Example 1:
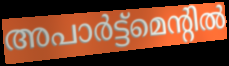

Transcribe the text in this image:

അപാർട്ട്മെന്റിൽ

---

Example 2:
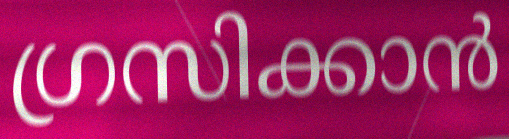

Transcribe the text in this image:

ഗ്രസിക്കാൻ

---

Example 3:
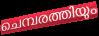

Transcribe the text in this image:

ചെമ്പരത്തിയും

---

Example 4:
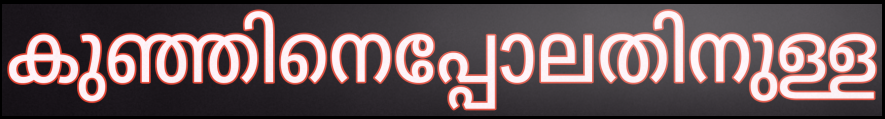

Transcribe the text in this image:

കുഞ്ഞിനെപ്പോലതിനുള്ള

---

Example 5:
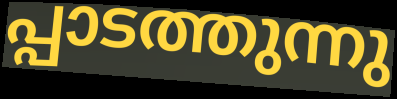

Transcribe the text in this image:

പ്പാടത്തുന്നു